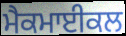
ਮੈਕਮਾਈਕਲ